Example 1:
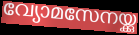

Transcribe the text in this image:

വ്യോമസേനയ്ക്കു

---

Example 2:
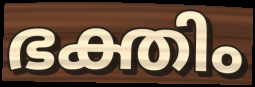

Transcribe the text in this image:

ഭക്തിം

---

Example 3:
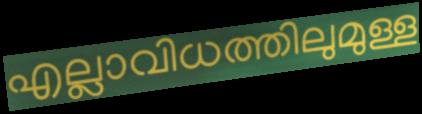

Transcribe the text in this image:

എല്ലാവിധത്തിലുമുള്ള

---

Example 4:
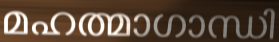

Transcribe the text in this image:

മഹത്മാഗാന്ധി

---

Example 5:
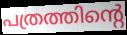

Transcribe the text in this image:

പത്രത്തിന്റെ